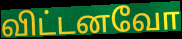
விட்டனவோ